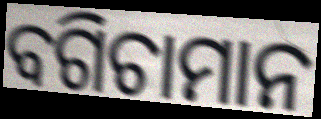
ବଗିଚାମାନ